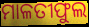
ମାଳତୀଫୁଲ